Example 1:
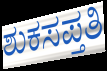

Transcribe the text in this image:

ಶುಕಸಪ್ತತಿ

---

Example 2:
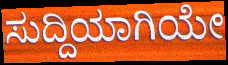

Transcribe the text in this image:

ಸುದ್ದಿಯಾಗಿಯೇ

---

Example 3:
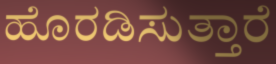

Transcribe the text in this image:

ಹೊರಡಿಸುತ್ತಾರೆ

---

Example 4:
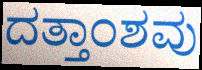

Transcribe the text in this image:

ದತ್ತಾಂಶವು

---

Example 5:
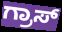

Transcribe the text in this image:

ಗ್ರಾಸ್